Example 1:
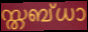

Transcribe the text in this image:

സ്തബ്ധാ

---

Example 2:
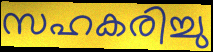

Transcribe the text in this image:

സഹകരിച്ചു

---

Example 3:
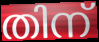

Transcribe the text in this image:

തിന്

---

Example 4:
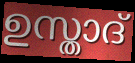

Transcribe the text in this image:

ഉസ്താദ്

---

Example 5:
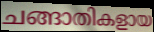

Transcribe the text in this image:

ചങ്ങാതികളായ